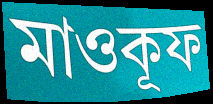
মাওকূফ